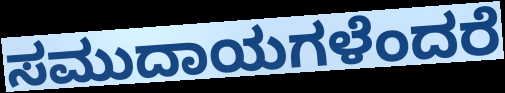
ಸಮುದಾಯಗಳೆಂದರೆ